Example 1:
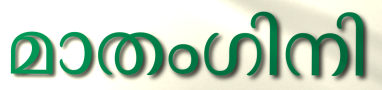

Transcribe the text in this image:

മാതംഗിനി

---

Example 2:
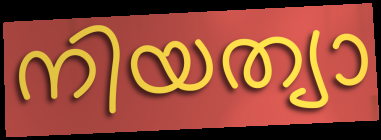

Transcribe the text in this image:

നിയത്യാ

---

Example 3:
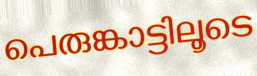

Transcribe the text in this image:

പെരുങ്കാട്ടിലൂടെ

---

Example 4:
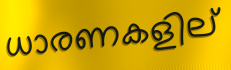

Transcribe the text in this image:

ധാരണകളില്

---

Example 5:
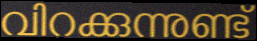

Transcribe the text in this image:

വിറക്കുന്നുണ്ട്